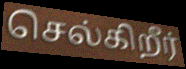
செல்கிறீர்